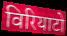
विरियाटो